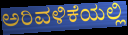
ಅರಿವಳಿಕೆಯಲ್ಲಿ